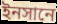
ইনসানে